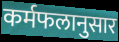
कर्मफलानुसार